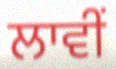
ਲਾਵੀਂ